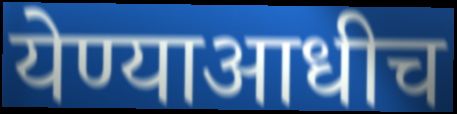
येण्याआधीच